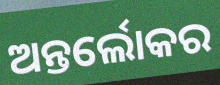
ଅନ୍ତର୍ଲୋକର